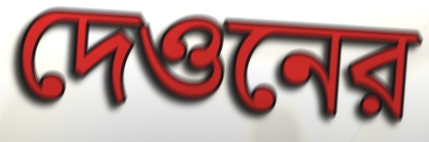
দেওনের